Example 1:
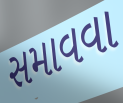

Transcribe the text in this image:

સમાવવા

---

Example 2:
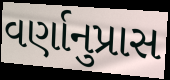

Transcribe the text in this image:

વર્ણાનુપ્રાસ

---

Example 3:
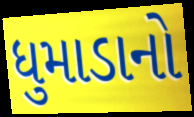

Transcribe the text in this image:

ધુમાડાનો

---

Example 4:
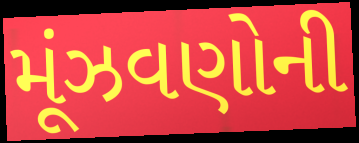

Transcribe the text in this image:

મૂંઝવણોની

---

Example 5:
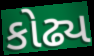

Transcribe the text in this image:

કોઢ્ય